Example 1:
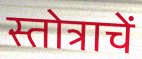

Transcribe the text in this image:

स्तोत्राचें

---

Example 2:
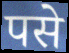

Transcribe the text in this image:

पसे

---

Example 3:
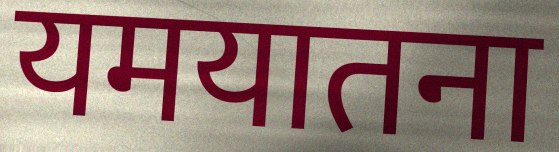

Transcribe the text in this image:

यमयातना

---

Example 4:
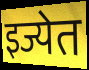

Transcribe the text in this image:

इज्येत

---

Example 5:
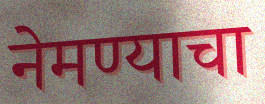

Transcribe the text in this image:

नेमण्याचा